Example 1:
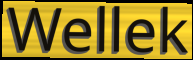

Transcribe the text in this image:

Wellek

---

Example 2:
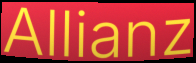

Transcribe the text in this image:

Allianz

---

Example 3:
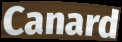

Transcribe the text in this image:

Canard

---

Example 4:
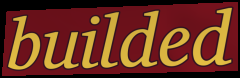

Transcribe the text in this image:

builded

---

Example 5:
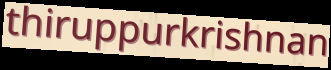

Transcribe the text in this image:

thiruppurkrishnan